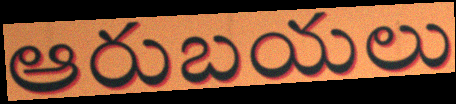
ఆరుబయలు